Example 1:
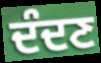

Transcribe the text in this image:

ਦੰਦਣ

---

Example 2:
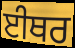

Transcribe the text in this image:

ਈਥਰ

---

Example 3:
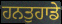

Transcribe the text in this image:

ਹਨਤੁਹਾਡੇ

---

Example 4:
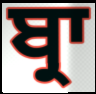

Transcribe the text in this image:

ਬ੍ਰਾ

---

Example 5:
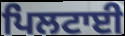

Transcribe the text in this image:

ਪਿਲਟਾਈ